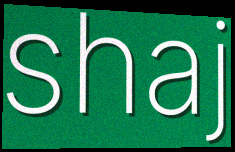
shaj